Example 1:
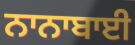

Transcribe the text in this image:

ਨਾਨਾਬਾਈ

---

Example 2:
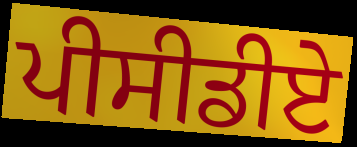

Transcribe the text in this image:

ਪੀਸੀਡੀਏ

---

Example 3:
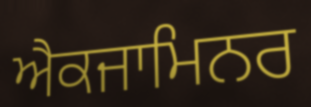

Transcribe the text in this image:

ਐਕਜਾਮਿਨਰ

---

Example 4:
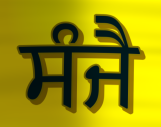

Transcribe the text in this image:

ਸੰਜੈ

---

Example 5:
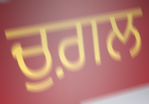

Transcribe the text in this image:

ਚੁਗ਼ਲ